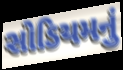
સોડિયમનું